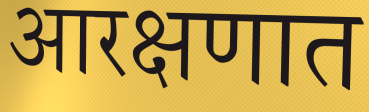
आरक्षणात